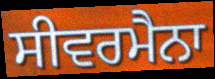
ਸੀਵਰਮੈਨਾ